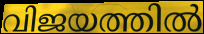
വിജയത്തിൽ